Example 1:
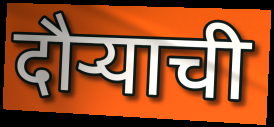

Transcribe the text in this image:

दौर्‍याची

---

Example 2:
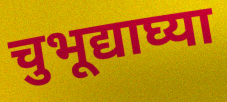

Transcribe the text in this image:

चुभूद्याघ्या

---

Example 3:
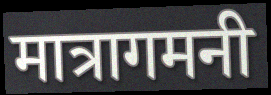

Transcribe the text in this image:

मात्रागमनी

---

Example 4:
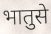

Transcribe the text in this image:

भातुसे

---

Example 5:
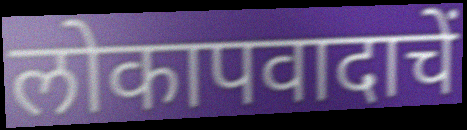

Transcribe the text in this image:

लोकापवादाचें